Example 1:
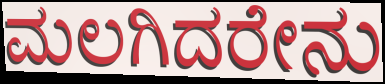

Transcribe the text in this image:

ಮಲಗಿದರೇನು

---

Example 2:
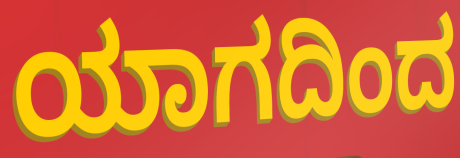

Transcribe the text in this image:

ಯಾಗದಿಂದ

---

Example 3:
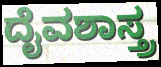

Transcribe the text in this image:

ದೈವಶಾಸ್ತ್ರ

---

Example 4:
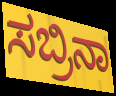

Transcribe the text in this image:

ಸಬ್ರಿನಾ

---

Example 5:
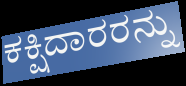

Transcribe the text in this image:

ಕಕ್ಷಿದಾರರನ್ನು